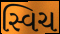
સ્વિચ